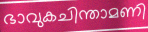
ഭാവുകചിന്താമണി